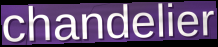
chandelier